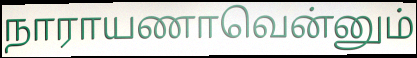
நாராயணாவென்னும்